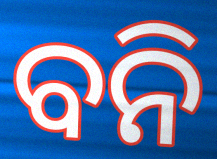
ବନି